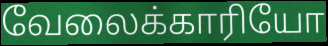
வேலைக்காரியோ